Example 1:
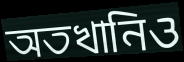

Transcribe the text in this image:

অতখানিও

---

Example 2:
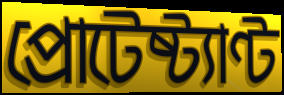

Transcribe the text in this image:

প্রোটেষ্ট্যাণ্ট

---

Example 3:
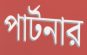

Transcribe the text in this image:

পার্টনার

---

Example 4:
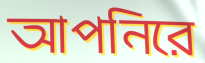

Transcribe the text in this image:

আপনিরে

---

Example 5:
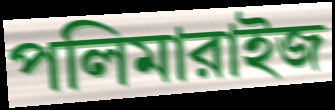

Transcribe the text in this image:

পলিমারাইজ